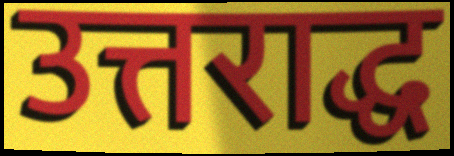
उत्तराद्ध